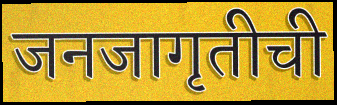
जनजागृतीची